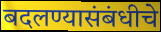
बदलण्यासंबंधीचे